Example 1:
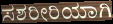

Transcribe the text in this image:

ಸಶರೀರಿಯಾಗಿ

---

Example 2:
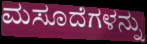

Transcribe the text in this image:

ಮಸೂದೆಗಳನ್ನು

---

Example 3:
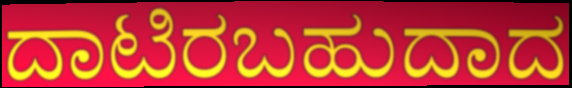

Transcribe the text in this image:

ದಾಟಿರಬಹುದಾದ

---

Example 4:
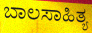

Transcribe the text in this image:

ಬಾಲಸಾಹಿತ್ಯ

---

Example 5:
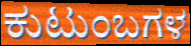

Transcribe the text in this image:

ಕುಟುಂಬಗಳ